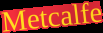
Metcalfe